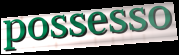
possesso